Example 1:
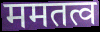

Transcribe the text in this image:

ममतत्व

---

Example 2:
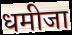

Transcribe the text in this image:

धमीजा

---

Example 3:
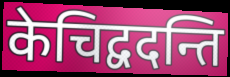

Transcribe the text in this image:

केचिद्वदन्ति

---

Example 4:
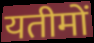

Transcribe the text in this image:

यतीमों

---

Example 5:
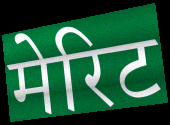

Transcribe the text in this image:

मेरिट